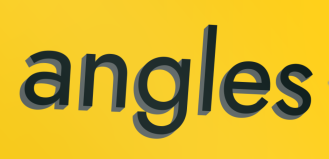
angles